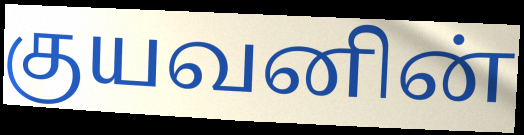
குயவனின்